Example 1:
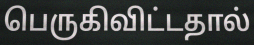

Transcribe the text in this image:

பெருகிவிட்டதால்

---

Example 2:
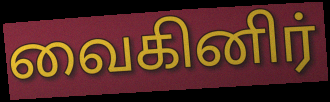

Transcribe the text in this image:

வைகினிர்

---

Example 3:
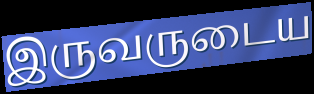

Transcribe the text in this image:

இருவருடைய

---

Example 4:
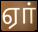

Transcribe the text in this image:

ஏர்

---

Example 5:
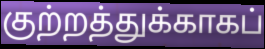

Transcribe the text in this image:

குற்றத்துக்காகப்